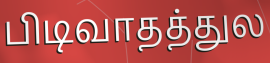
பிடிவாதத்துல